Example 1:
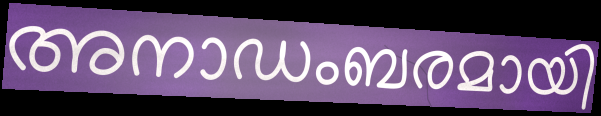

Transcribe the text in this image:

അനാഡംബരമായി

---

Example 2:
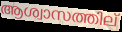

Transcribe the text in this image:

ആശ്വാസത്തില്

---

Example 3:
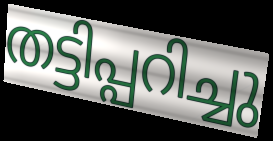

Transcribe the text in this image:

തട്ടിപ്പറിച്ചു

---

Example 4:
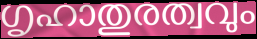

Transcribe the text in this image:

ഗൃഹാതുരത്വവും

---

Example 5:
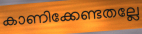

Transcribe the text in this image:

കാണിക്കേണ്ടതല്ലേ